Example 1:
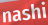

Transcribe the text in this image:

nashi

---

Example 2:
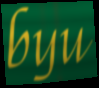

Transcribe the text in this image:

byu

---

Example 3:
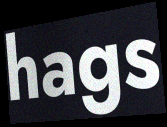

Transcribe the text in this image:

hags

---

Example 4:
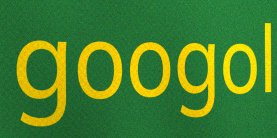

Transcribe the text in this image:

googol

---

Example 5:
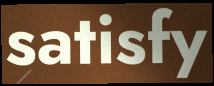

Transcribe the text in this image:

satisfy